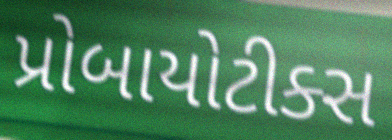
પ્રોબાયોટીક્સ